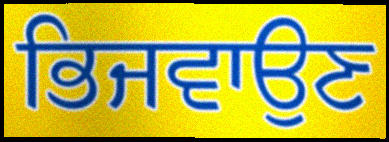
ਭਿਜਵਾਉਣ